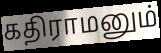
கதிராமனும்